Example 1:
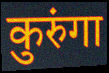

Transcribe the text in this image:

कुरुंगा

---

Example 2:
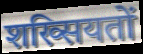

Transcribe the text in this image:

शख्सियतों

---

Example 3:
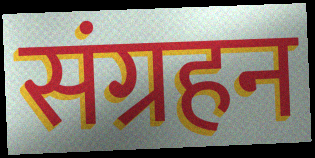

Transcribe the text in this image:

संग्रहन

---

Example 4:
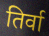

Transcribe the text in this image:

तिर्वा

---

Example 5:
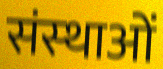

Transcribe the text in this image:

संस्‍थाओं